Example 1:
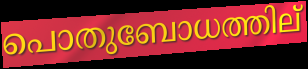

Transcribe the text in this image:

പൊതുബോധത്തില്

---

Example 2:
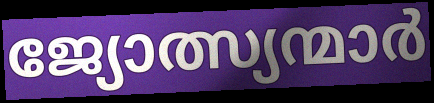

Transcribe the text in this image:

ജ്യോത്സ്യന്മാർ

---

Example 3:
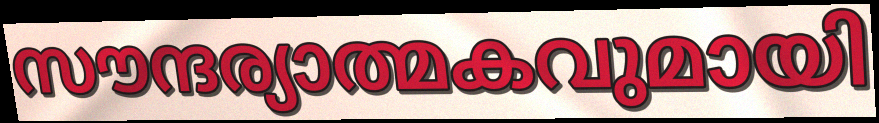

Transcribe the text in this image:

സൗന്ദര്യാത്മകവുമായി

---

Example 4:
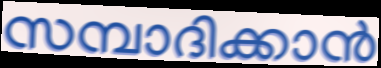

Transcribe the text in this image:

സമ്പാദിക്കാൻ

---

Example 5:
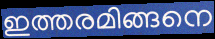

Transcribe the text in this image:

ഇത്തരമിങ്ങനെ